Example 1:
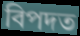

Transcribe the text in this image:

বিপদত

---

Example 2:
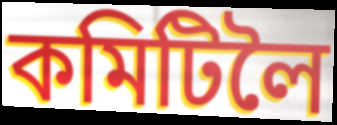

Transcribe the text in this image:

কমিটিলৈ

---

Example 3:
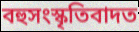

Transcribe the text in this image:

বহুসংস্কৃতিবাদত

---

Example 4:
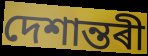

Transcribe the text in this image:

দেশান্তৰী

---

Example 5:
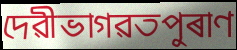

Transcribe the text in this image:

দেৱীভাগৱতপুৰাণ